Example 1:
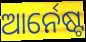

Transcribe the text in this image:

ଆର୍ନେଷ୍ଟ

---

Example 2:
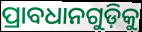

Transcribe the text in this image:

ପ୍ରାବଧାନଗୁଡ଼ିକୁ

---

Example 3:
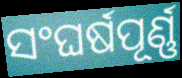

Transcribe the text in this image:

ସଂଘର୍ଷପୂର୍ଣ୍ଣ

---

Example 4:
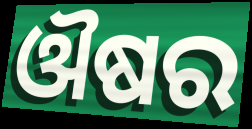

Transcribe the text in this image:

ଔଷର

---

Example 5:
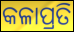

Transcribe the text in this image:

କଳାପ୍ରତି